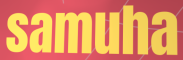
samuha